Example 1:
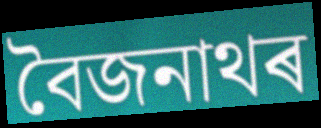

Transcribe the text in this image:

বৈজনাথৰ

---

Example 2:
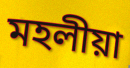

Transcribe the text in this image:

মহলীয়া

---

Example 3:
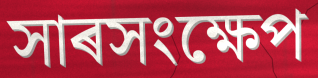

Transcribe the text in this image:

সাৰসংক্ষেপ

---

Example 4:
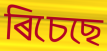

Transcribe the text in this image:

ৰিচেছে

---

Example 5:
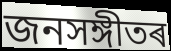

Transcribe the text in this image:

জনসঙ্গীতৰ